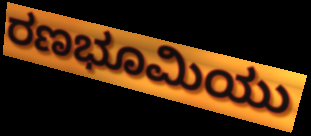
ರಣಭೂಮಿಯು